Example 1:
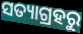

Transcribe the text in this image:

ସତ୍ୟାଗ୍ରହରୁ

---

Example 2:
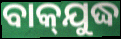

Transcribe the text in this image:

ବାକ୍‌ଯୁଦ୍ଧ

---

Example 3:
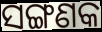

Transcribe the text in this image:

ସଙ୍ଗଣକ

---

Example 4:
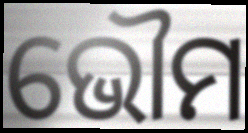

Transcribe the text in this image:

ଭୌମ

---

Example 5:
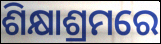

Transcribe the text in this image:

ଶିକ୍ଷାଶ୍ରମରେ